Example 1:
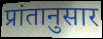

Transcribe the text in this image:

प्रांतानुसार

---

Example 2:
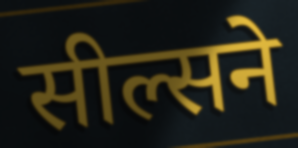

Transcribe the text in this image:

सील्सने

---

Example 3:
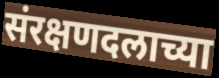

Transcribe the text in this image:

संरक्षणदलाच्या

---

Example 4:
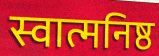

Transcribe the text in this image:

स्वात्मनिष्ठ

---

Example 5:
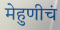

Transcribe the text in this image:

मेहुणीचं